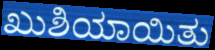
ಖುಶಿಯಾಯಿತು